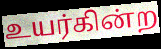
உயர்கின்ற